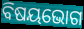
ବିଷୟଭୋଗ